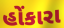
હોંકારા